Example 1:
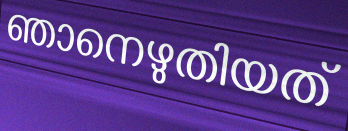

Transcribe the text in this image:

ഞാനെഴുതിയത്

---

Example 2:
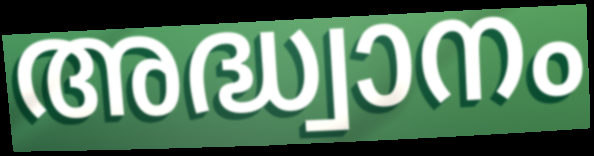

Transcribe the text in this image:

അദ്ധ്വാനം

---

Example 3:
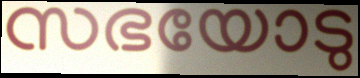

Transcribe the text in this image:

സഭയോടു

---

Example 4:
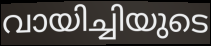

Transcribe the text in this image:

വായിച്ചിയുടെ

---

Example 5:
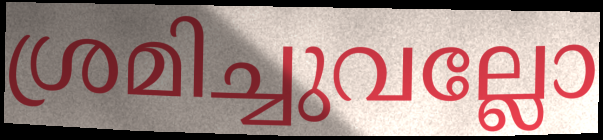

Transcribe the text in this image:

ശ്രമിച്ചുവല്ലോ